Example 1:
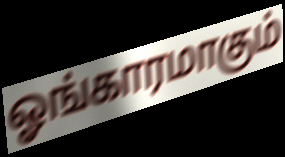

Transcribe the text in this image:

ஓங்காரமாகும்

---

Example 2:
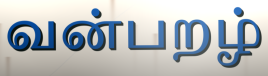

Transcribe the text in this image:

வன்பறழ்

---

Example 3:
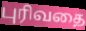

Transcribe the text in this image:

புரிவதை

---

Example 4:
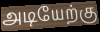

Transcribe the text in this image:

அடியேற்கு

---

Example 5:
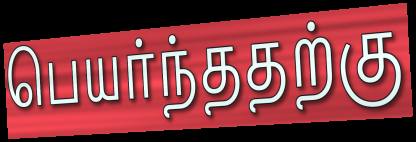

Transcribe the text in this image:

பெயர்ந்ததற்கு